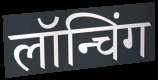
लॉन्चिंग